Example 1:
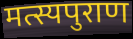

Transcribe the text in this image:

मत्स्यपुराण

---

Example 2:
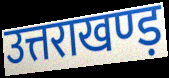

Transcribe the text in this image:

उत्तराखण्ड़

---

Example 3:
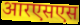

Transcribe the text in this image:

आरएसएस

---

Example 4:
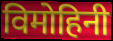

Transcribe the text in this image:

विमोहिनी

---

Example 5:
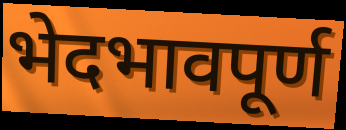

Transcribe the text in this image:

भेदभावपूर्ण